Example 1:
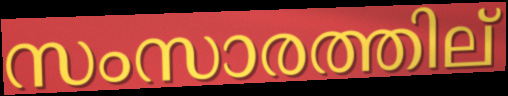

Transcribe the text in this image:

സംസാരത്തില്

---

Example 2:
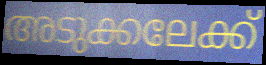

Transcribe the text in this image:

അടുക്കലേക്ക്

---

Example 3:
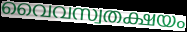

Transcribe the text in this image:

വൈവസ്വതക്ഷയം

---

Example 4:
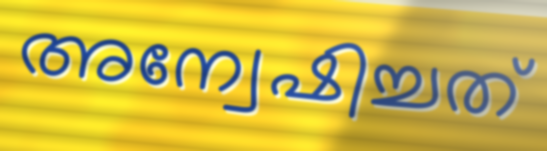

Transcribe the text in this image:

അന്വേഷിച്ചത്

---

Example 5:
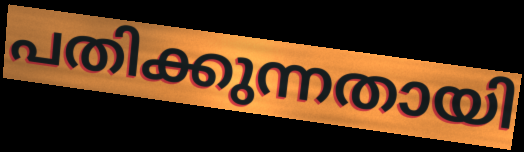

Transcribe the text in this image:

പതിക്കുന്നതായി